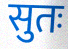
सुतः